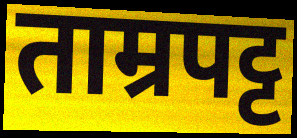
ताम्रपट्ट